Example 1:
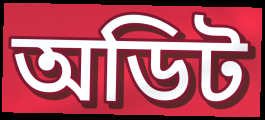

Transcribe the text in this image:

অডিট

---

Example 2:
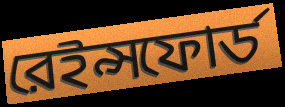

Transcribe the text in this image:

রেইন্সফোর্ড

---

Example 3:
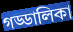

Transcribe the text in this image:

গড্ডালিকা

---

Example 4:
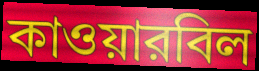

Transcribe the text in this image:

কাওয়ারবিল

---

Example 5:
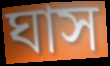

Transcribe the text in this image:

ঘাস